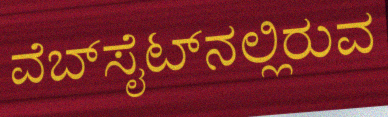
ವೆಬ್‌ಸೈಟ್‌ನಲ್ಲಿರುವ